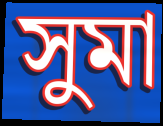
সুমা